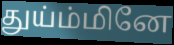
துய்ம்மினே